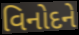
વિનોદને